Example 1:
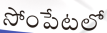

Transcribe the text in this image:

సోంపేటలో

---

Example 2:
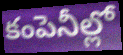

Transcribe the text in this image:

కంపెనీల్లో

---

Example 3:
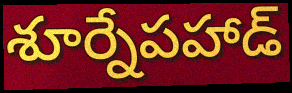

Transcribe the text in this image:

శూర్నేపహాడ్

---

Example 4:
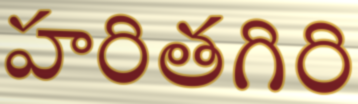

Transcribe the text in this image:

హరితగిరి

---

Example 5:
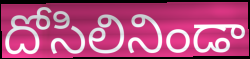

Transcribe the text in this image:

దోసిలినిండా